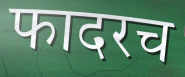
फादरच